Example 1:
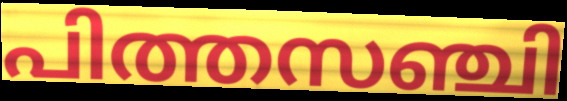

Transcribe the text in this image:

പിത്തസഞ്ചി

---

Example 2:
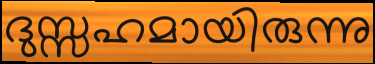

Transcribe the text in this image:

ദുസ്സഹമായിരുന്നു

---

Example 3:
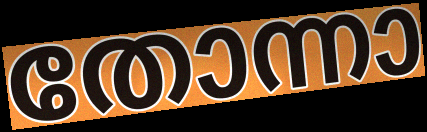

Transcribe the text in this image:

തോന്നാ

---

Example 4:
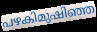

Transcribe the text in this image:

പഴകിമുഷിഞ്ഞ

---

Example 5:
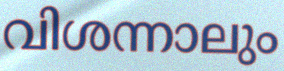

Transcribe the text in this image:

വിശന്നാലും